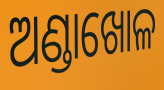
ଅଣ୍ଡାଖୋଳ